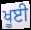
ਖੂਈ